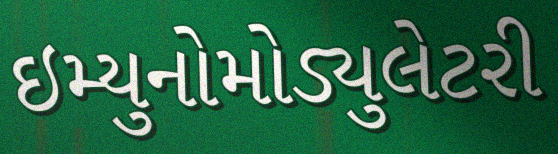
ઇમ્યુનોમોડ્યુલેટરી